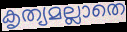
കൃത്യമല്ലാതെ